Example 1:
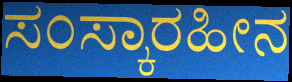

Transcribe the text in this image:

ಸಂಸ್ಕಾರಹೀನ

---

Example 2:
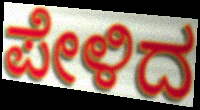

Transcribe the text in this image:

ಪೇಳಿದ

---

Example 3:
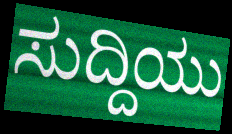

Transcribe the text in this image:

ಸುದ್ದಿಯು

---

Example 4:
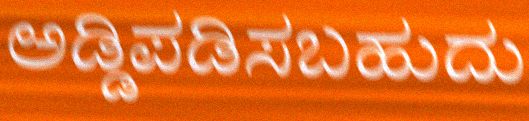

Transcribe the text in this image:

ಅಡ್ಡಿಪಡಿಸಬಹುದು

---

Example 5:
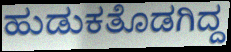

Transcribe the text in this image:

ಹುಡುಕತೊಡಗಿದ್ದ